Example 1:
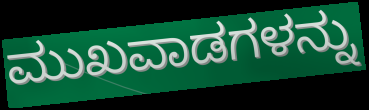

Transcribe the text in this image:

ಮುಖವಾಡಗಳನ್ನು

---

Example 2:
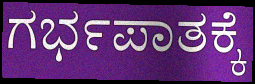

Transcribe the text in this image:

ಗರ್ಭಪಾತಕ್ಕೆ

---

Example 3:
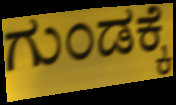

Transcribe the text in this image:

ಗುಂಡಕ್ಕೆ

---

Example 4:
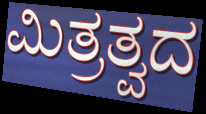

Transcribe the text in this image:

ಮಿತ್ರತ್ವದ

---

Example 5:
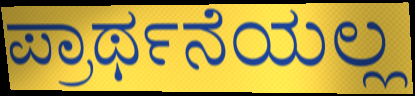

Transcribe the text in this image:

ಪ್ರಾರ್ಥನೆಯಲ್ಲ